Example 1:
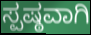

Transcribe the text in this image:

ಸ್ಪಷ್ಠವಾಗಿ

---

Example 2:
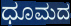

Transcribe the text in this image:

ಧೂಮದ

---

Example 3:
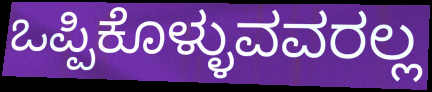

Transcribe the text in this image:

ಒಪ್ಪಿಕೊಳ್ಳುವವರಲ್ಲ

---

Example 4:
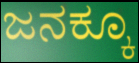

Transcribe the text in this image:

ಜನಕ್ಕೂ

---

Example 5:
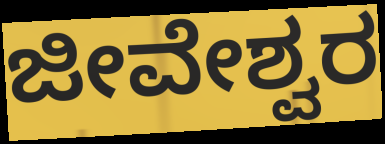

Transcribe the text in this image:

ಜೀವೇಶ್ವರ